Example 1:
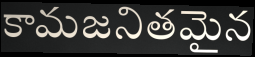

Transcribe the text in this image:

కామజనితమైన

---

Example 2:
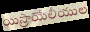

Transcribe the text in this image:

యిస్రాయేలీయుల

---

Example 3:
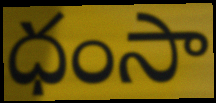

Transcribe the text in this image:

ధంసా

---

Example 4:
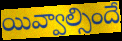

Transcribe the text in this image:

యివ్వాల్సిందే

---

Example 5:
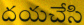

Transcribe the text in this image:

దయచేసి